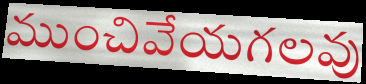
ముంచివేయగలవు